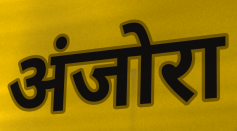
अंजोरा